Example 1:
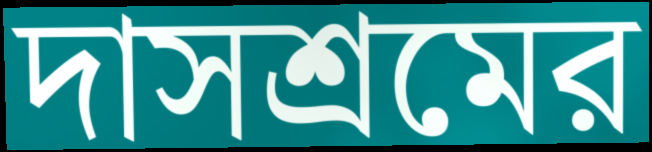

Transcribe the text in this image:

দাসশ্রমের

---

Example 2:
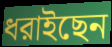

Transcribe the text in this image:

ধরাইছেন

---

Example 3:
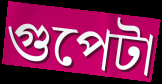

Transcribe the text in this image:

গুপেটা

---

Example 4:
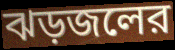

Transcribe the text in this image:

ঝড়জলের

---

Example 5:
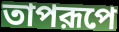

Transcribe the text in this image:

তাপরূপে